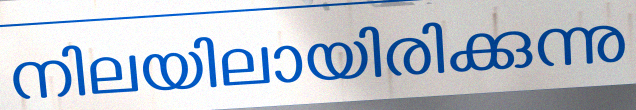
നിലയിലായിരിക്കുന്നു